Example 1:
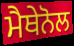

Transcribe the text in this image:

ਮੈਥੇਨੋਲ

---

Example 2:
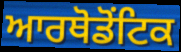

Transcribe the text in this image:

ਆਰਥੋਡੋਂਟਿਕ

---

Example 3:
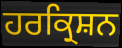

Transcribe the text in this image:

ਹਰਕ੍ਰਿਸ਼ਨ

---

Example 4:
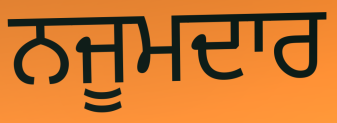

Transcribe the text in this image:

ਨਜੂਮਦਾਰ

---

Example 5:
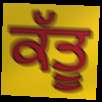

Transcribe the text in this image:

ਕੱਤੂ